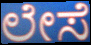
ಲೇಸೆ